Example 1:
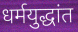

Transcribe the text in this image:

धर्मयुद्धांत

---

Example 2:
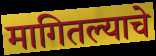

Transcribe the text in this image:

मागितल्याचे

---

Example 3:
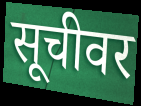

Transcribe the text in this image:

सूचीवर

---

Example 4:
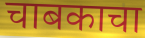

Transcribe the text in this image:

चाबकाचा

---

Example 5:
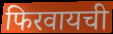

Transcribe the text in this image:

फिरवायची